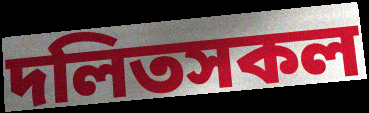
দলিতসকল